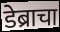
डेब्राचा